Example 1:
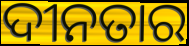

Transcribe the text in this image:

ଦୀନତାର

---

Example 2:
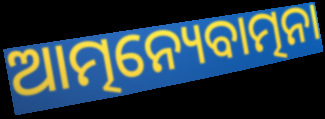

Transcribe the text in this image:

ଆତ୍ମନ୍ୟେବାତ୍ମନା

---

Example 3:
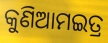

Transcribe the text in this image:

କୁଣିଆମଇତ୍ର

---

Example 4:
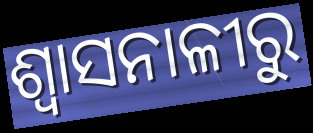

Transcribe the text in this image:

ଶ୍ୱାସନାଳୀରୁ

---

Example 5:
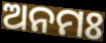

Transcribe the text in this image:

ଅନମଃ